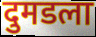
दुमडला